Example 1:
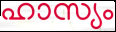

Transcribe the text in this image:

ഹാസ്യം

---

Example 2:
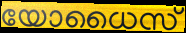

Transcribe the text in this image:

യോധൈസ്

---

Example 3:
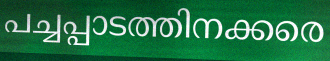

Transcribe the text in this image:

പച്ചപ്പാടത്തിനക്കരെ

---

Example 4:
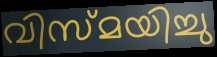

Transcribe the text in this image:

വിസ്മയിച്ചു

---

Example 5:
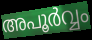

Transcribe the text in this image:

അപൂർവ്വം